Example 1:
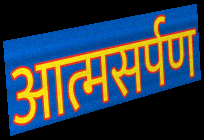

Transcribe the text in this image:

आत्मसर्पण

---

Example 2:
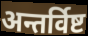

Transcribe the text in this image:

अन्तर्विष्ट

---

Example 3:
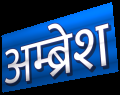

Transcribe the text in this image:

अम्ब्रेश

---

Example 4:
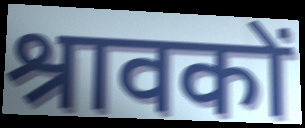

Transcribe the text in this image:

श्रावकों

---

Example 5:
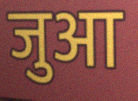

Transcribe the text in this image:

जुआ